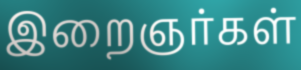
இறைஞர்கள்